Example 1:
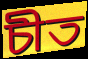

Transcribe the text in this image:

চীত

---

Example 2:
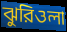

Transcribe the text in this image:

ঝুরিওলা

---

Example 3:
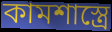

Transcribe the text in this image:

কামশাস্ত্রে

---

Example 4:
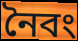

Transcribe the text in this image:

নৈবং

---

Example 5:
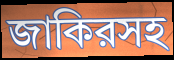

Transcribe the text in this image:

জাকিরসহ